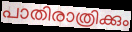
പാതിരാത്രിക്കും